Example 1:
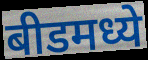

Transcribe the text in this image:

बीडमध्ये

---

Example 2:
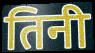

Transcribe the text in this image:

तिनी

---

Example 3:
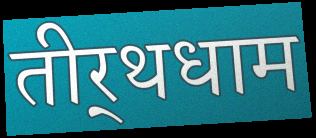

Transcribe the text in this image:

तीर्थधाम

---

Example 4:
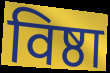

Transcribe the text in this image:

विष्ठा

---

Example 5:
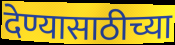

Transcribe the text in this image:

देण्यासाठीच्या